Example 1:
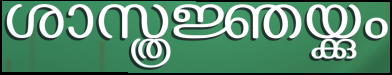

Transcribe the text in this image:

ശാസ്ത്രജ്ഞയ്ക്കും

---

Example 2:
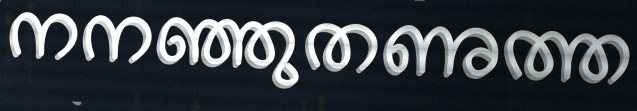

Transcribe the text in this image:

നനഞ്ഞുതണുത്ത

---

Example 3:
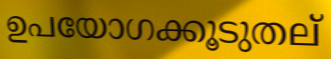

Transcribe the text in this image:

ഉപയോഗക്കൂടുതല്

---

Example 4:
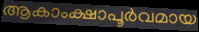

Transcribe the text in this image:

ആകാംക്ഷാപൂർവമായ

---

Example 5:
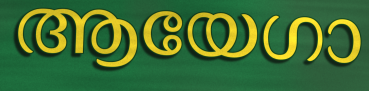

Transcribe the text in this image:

ആയേഗാ